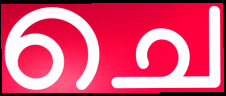
ചെ